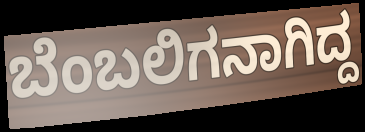
ಬೆಂಬಲಿಗನಾಗಿದ್ದ